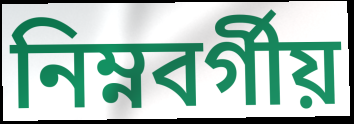
নিম্নবর্গীয়